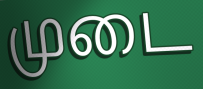
முடை